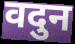
वदुन